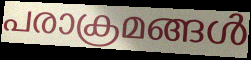
പരാക്രമങ്ങൾ